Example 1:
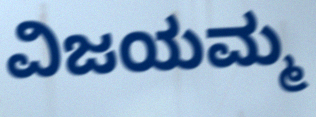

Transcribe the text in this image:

ವಿಜಯಮ್ಮ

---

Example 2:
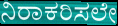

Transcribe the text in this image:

ನಿರಾಕರಿಸಲೇ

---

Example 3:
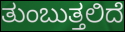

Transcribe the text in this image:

ತುಂಬುತ್ತಲಿದೆ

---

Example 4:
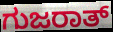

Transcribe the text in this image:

ಗುಜರಾತ್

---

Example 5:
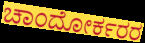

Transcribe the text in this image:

ಚಾಂದೋರ್ಕರರ